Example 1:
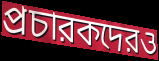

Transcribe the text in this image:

প্রচারকদেরও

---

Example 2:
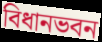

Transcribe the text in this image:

বিধানভবন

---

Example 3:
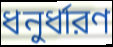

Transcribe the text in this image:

ধনুর্ধারণ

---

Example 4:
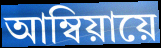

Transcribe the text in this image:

আম্বিয়ায়ে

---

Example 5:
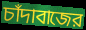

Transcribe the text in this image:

চাঁদাবাজের